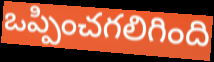
ఒప్పించగలిగింది